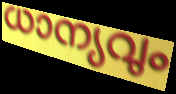
ധാന്യവും